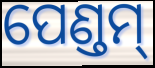
ପେଣ୍ଡମ୍